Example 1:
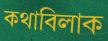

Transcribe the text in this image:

কথাবিলাক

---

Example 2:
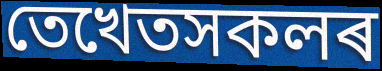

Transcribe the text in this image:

তেখেতসকলৰ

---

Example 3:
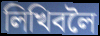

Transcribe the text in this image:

লিখিবলৈ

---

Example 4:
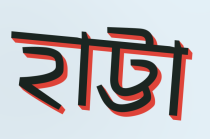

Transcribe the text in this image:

হাট্টা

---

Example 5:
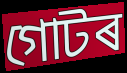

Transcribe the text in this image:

গোটৰ